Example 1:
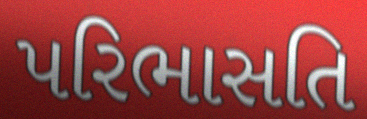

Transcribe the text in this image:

પરિભાસતિ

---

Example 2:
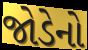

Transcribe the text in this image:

જોડેનો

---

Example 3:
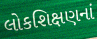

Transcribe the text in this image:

લોકશિક્ષણનાં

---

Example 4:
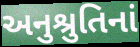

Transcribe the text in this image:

અનુશ્રુતિનાં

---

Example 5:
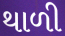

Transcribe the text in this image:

થાળી